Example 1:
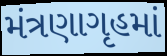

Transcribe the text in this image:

મંત્રણાગૃહમાં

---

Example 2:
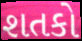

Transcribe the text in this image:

શતકો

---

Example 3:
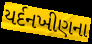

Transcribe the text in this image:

યર્દનખીણના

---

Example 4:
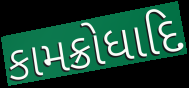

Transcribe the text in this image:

કામક્રોધાદિ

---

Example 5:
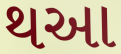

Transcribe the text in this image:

થઆ